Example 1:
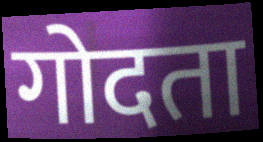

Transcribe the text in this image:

गोदता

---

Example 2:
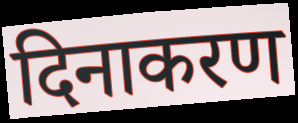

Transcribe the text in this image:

दिनाकरण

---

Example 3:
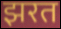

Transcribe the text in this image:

झरत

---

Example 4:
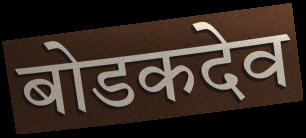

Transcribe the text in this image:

बोडकदेव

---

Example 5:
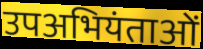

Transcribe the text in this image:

उपअभियंताओं